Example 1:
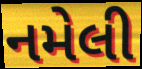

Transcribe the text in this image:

નમેલી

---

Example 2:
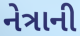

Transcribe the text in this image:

નેત્રાની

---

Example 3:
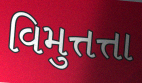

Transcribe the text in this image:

વિમુત્તત્તા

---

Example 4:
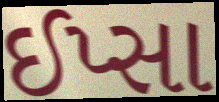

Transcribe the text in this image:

ઈપ્સા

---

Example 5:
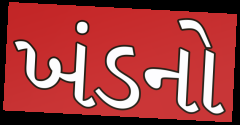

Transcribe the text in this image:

ખંડનો